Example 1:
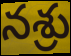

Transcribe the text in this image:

నశ్రు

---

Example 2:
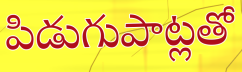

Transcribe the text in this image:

పిడుగుపాట్లతో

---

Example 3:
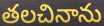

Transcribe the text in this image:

తలచినాను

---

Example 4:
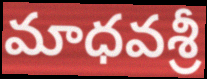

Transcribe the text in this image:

మాధవశ్రీ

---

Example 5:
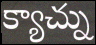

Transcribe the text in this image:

క్యాచ్ను